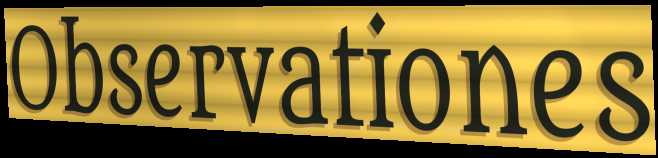
Observationes